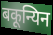
बकून्यिन